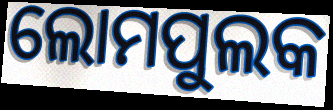
ଲୋମପୁଲକ